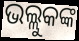
ଭଲ୍ଲୁକଙ୍କ